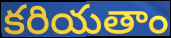
కరియతాం